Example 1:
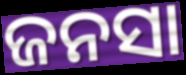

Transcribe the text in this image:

ଜନସା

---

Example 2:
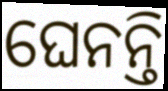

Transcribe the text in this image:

ଘେନନ୍ତି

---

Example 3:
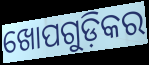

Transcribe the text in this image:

ଖୋପଗୁଡ଼ିକର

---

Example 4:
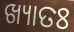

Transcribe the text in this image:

ଖ୍ୟାତଃ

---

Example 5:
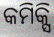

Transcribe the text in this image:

କମିକ୍ସି